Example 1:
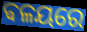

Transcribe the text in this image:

ଵଳୟରେ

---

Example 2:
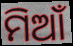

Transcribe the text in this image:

ମିଆଁ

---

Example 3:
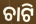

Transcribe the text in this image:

ଚାଟି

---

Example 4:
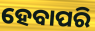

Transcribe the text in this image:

ହେବାପରି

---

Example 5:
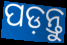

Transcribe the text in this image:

ପଡ଼ନ୍ତୁ